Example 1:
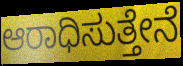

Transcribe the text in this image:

ಆರಾಧಿಸುತ್ತೇನೆ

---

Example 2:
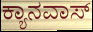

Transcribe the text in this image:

ಕ್ಯಾನವಾಸ್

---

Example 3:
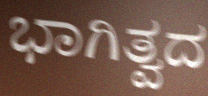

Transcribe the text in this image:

ಭಾಗಿತ್ವದ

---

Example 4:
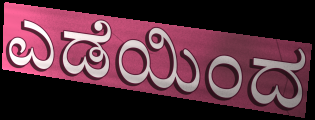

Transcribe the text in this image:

ಎಡೆಯಿಂದ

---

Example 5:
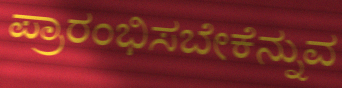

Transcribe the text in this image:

ಪ್ರಾರಂಭಿಸಬೇಕೆನ್ನುವ